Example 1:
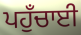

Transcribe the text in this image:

ਪਹੁਁਚਾਈ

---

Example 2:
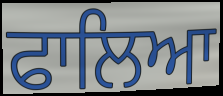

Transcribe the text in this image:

ਫਾਲਿਆ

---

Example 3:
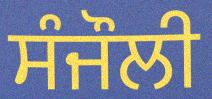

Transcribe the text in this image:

ਸੰਜੌਲੀ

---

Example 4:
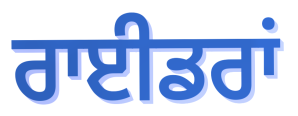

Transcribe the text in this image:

ਰਾਈਡਰਾਂ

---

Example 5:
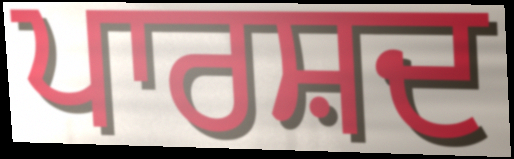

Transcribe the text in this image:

ਪਾਰਸ਼ਦ